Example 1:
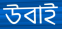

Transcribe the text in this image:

উবাই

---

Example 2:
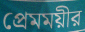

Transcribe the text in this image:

প্রেমময়ীর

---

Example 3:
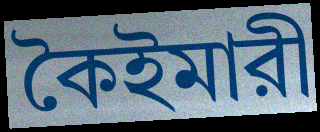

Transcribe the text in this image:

কৈইমারী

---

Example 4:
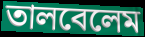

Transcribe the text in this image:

তালবেলেম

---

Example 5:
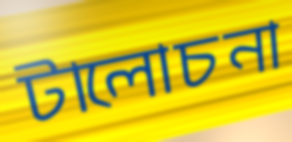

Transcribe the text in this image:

টালোচনা